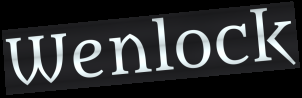
Wenlock